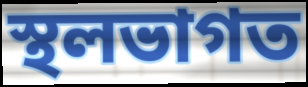
স্থলভাগত